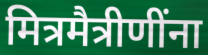
मित्रमैत्रीणींना